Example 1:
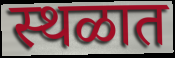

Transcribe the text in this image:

स्थळात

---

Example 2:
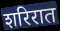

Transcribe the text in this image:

शरिरात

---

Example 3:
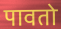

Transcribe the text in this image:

पावतो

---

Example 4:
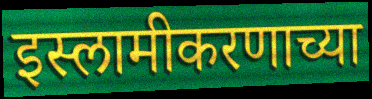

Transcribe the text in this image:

इस्लामीकरणाच्या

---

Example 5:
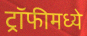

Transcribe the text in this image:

ट्रॉफीमध्ये